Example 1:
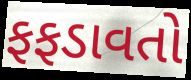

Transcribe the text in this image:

ફફડાવતો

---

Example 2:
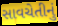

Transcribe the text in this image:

સાવચેતીનું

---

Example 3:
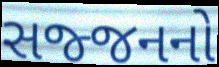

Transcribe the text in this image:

સજ્જનનો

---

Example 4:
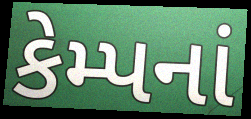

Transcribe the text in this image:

કેમ્પનાં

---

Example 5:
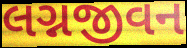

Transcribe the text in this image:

લગ્નજીવન